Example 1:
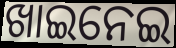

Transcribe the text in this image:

ଖାଇନେଇ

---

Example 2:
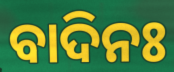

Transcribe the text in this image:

ବାଦିନଃ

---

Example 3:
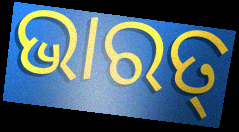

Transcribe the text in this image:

ଭାରତ୍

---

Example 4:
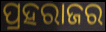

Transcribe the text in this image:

ପ୍ରହରାଜର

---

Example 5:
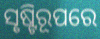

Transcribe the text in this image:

ସୃଷ୍ଟିରୂପରେ